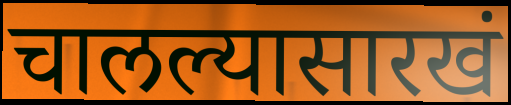
चालल्यासारखं